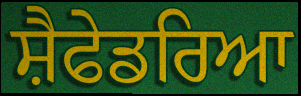
ਸ਼ੈਫੇਡਰਿਆ